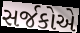
સર્જકોએ